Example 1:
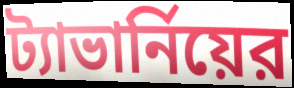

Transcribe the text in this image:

ট্যাভার্নিয়ের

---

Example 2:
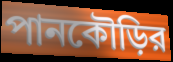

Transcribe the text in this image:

পানকৌড়ির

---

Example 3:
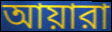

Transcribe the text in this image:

আয়ারা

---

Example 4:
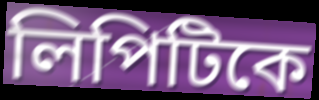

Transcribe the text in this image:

লিপিটিকে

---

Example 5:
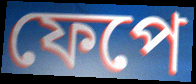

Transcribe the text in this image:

ফেপে